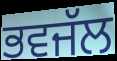
ਭਵਜੱਲ